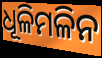
ଧୂଳିମଳିନ